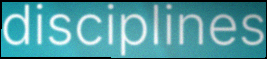
disciplines